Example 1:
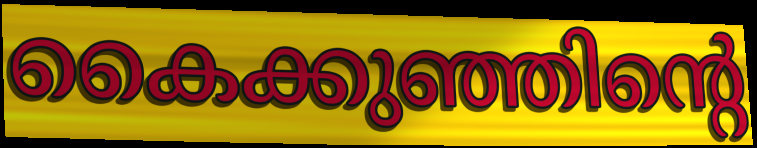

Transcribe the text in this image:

കൈക്കുഞ്ഞിന്റെ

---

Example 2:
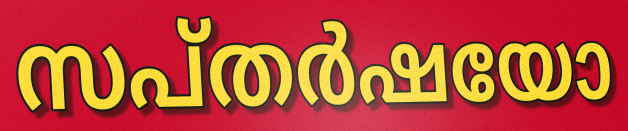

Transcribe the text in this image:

സപ്തർഷയോ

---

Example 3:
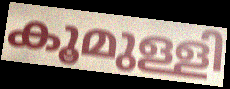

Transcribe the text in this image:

കൂമുള്ളി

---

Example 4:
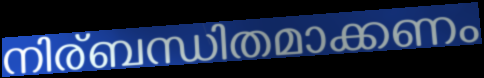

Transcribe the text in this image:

നിര്ബന്ധിതമാക്കണം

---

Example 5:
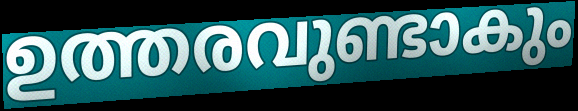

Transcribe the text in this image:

ഉത്തരവുണ്ടാകും